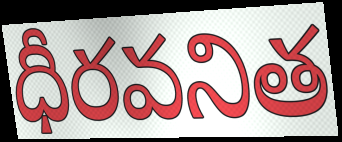
ధీరవనిత